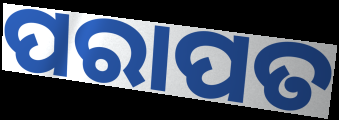
ପରାପତ